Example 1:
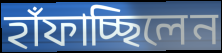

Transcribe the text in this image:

হাঁফাচ্ছিলেন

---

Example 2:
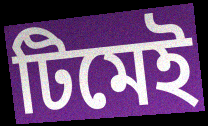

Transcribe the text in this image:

টিমেই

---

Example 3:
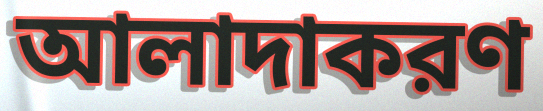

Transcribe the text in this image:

আলাদাকরণ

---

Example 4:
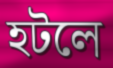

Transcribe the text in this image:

হটলে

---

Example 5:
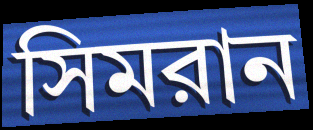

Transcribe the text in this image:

সিমরান